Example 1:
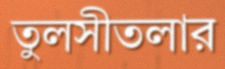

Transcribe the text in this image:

তুলসীতলার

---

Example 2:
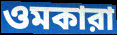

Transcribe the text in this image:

ওমকারা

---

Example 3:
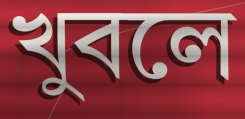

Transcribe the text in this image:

খুবলে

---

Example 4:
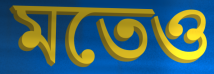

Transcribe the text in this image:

মতেও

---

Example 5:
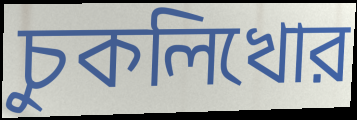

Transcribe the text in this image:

চুকলিখোর